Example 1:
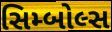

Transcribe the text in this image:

સિમ્બોલ્સ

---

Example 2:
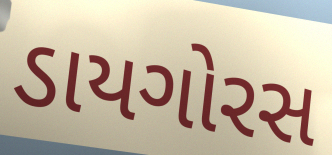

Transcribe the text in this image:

ડાયગોરસ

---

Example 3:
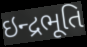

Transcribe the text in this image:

ઇન્દ્રભૂતિ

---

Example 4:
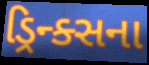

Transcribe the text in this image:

ડ્રિન્ક્સના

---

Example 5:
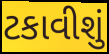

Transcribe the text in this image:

ટકાવીશું